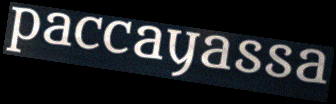
paccayassa